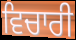
ਵਿਚਾਰੀ